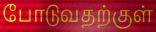
போடுவதற்குள்